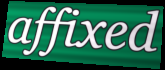
affixed